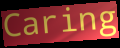
Caring